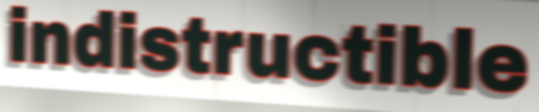
indistructible